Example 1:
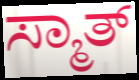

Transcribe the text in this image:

ಸ್ಮಾತ್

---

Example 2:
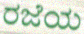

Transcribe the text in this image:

ರಜೆಯ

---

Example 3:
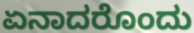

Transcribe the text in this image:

ಏನಾದರೊಂದು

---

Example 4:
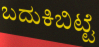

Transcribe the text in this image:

ಬದುಕಿಬಿಟ್ಟೆ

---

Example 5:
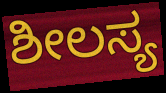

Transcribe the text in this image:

ಶೀಲಸ್ಯ